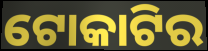
ଟୋକାଟିର